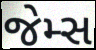
જેમ્સ